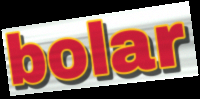
bolar